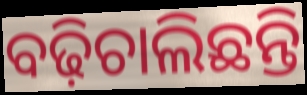
ବଢ଼ିଚାଲିଛନ୍ତି